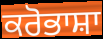
ਕਰੋਭਾਸ਼ਾ